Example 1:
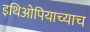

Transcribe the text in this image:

इथिओपियाच्याच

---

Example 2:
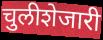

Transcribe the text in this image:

चुलीशेजारी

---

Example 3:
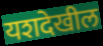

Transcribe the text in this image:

यशदेखील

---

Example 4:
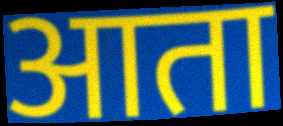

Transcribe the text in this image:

आता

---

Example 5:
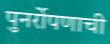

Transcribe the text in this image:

पुनर्रोपणाची